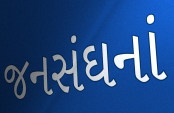
જનસંઘનાં